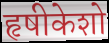
हृषीकेशो